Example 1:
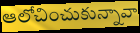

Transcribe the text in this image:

ఆలోచించుకున్నావా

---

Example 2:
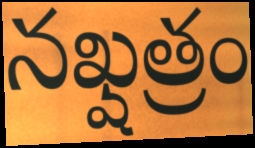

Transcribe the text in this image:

నఖ్షత్రం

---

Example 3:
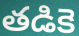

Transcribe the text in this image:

తడికె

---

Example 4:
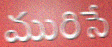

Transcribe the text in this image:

మురిసే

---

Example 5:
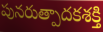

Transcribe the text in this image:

పునరుత్పాదకశక్తి